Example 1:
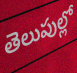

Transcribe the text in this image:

తెలుపుల్లో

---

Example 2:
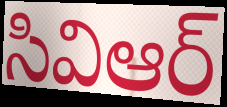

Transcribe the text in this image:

సివిఆర్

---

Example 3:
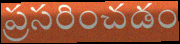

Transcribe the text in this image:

ప్రసరించడం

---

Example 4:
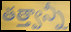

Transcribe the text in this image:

తత్త్వాన్నీ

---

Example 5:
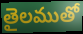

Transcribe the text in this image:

తైలముతో